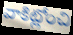
వాకిట్లోంచి